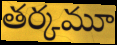
తర్కమూ